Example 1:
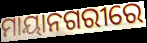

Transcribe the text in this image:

ମାୟାନଗରୀରେ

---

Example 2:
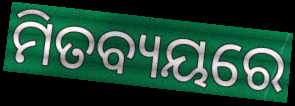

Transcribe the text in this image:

ମିତବ୍ୟୟରେ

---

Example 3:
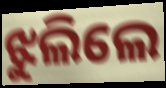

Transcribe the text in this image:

ଝୁଲିଲେ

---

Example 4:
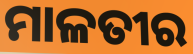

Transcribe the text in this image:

ମାଳତୀର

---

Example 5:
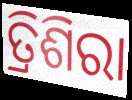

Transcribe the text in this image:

ତ୍ରିଶିରା